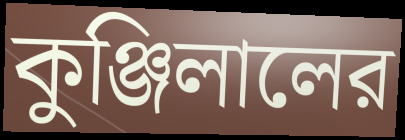
কুঞ্জিলালের